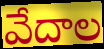
వేదాల